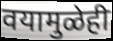
वयामुळेही